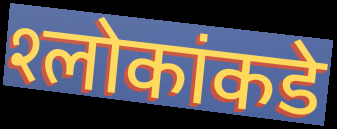
श्लोकांकडे